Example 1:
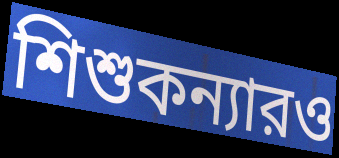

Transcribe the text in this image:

শিশুকন্যারও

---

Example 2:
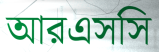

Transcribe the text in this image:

আরএসসি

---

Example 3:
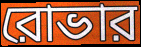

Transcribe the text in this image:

রোভার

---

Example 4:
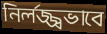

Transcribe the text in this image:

নির্লজ্জ্বভাবে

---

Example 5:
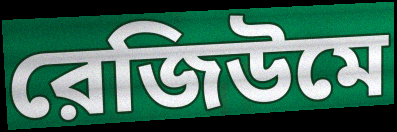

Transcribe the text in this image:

রেজিউমে